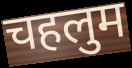
चहलुम